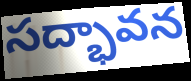
సద్భావన